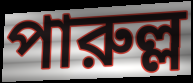
পারুল্ল